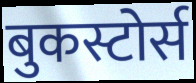
बुकस्टोर्स